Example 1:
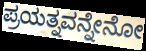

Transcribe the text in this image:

ಪ್ರಯತ್ನವನ್ನೇನೋ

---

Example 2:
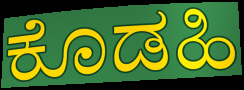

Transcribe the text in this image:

ಕೊಡಹಿ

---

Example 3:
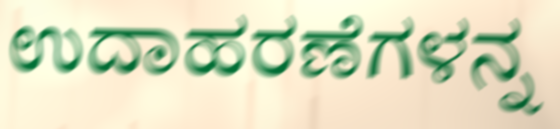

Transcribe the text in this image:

ಉದಾಹರಣೆಗಳನ್ನ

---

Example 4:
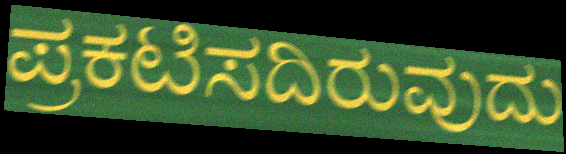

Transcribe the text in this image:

ಪ್ರಕಟಿಸದಿರುವುದು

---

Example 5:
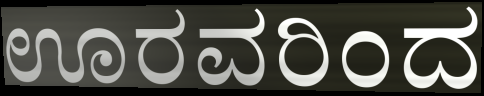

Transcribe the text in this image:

ಊರವರಿಂದ